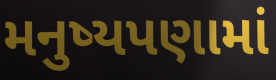
મનુષ્યપણામાં